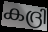
കദ്രി